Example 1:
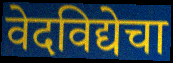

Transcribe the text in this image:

वेदविद्येचा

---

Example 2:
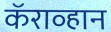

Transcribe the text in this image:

कॅराव्हान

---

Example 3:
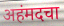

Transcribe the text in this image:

अहंमदचा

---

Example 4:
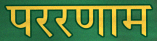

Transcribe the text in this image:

पररणाम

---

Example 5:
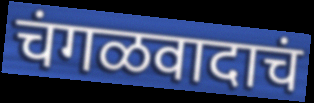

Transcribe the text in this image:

चंगळवादाचं